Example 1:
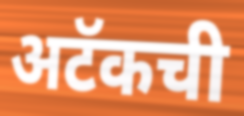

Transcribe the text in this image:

अटॅकची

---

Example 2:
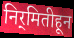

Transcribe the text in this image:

निर्मितीहून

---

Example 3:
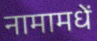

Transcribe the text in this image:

नामामधें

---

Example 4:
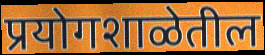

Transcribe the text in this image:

प्रयोगशाळेतील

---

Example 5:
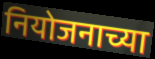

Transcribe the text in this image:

नियोजनाच्या